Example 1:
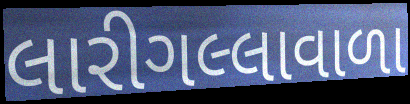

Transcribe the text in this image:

લારીગલ્લાવાળા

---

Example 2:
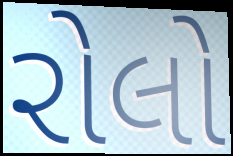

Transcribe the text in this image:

રોલો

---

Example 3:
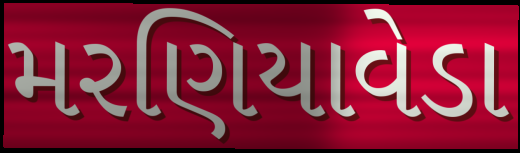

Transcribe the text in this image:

મરણિયાવેડા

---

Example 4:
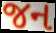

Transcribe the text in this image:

જન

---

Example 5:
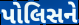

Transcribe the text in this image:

પોલિસને